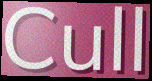
Cull